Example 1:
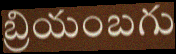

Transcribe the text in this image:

బ్రియంబగు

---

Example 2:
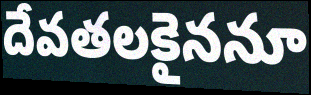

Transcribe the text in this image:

దేవతలకైననూ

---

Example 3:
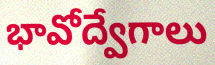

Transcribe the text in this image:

భావోద్వేగాలు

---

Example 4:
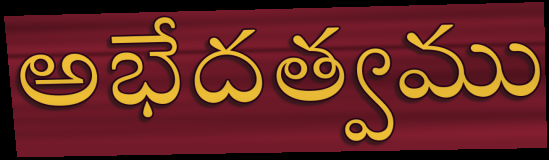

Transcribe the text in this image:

అభేదత్వము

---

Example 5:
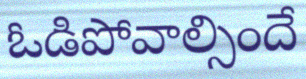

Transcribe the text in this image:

ఓడిపోవాల్సిందే